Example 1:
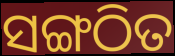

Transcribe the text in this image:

ସଙ୍ଗଠିତ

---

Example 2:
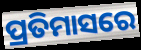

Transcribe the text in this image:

ପ୍ରତିମାସରେ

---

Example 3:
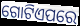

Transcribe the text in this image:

ଗୋଟିଏପରେ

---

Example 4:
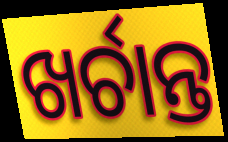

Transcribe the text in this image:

ଖର୍ଚାନ୍ତ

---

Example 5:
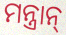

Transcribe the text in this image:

ମନ୍ତ୍ରାନ୍